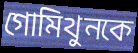
গোমিথুনকে